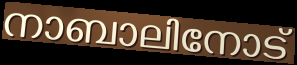
നാബാലിനോട്